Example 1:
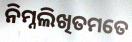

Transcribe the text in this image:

ନିମ୍ନଲିଖିତମତେ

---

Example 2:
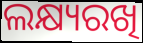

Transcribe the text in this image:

ଲକ୍ଷ୍ୟରଖି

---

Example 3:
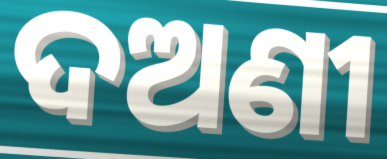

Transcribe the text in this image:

ଦଅଣୀ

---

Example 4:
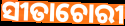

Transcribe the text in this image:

ସୀତାଚୋରୀ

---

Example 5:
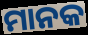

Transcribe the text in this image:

ମାନକ